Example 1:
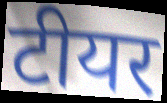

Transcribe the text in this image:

टीयर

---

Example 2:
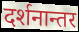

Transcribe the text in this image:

दर्शनान्तर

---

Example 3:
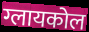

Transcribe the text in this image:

ग्लायकोल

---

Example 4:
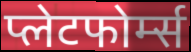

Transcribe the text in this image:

प्लेटफोर्म्स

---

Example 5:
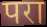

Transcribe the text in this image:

परा